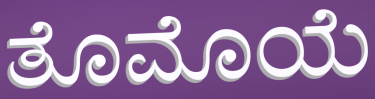
ತೊಮೊಯೆ